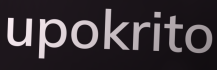
upokrito